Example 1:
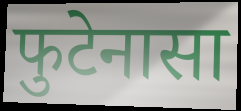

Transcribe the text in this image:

फुटेनासा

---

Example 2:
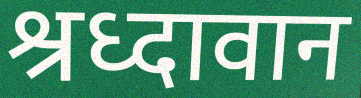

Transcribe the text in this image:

श्रध्दावान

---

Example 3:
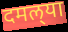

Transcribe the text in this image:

दमल्या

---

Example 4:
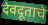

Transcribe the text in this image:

देवदूताचे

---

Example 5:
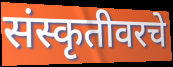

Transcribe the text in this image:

संस्कृतीवरचे